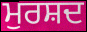
ਮੁਰਸ਼ਦ